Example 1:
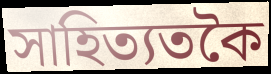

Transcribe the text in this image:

সাহিত্যতকৈ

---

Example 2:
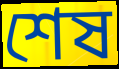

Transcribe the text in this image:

শেষ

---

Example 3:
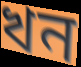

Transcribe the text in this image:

খন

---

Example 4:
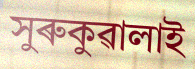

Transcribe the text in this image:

সুৰুকুৱালাই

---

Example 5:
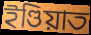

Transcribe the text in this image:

ইণ্ডিয়াত